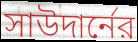
সাউদার্নের